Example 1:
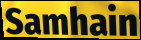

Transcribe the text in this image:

Samhain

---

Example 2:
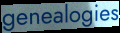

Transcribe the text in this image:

genealogies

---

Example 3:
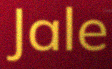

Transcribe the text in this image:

Jale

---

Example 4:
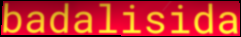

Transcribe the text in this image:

badalisida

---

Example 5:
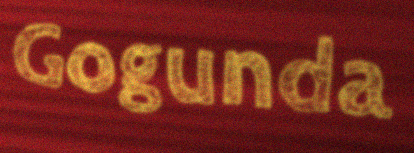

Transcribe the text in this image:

Gogunda